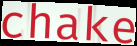
chake